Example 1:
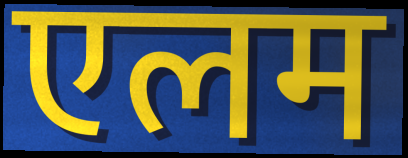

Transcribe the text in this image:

एलम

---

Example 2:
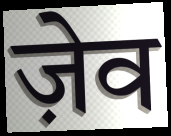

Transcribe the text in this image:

ज़ेव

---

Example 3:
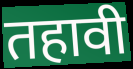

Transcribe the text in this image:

तहावी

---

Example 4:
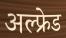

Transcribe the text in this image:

अल्फ्रेड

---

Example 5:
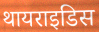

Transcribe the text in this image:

थायराइडिस